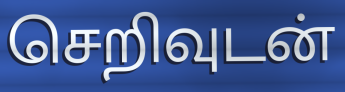
செறிவுடன்